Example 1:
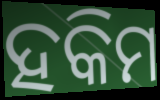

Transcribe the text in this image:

ହକିମ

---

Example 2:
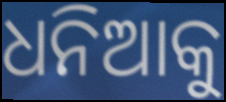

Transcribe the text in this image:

ଧନିଆକୁ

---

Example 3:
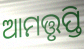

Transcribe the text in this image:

ଆମତ୍ତୃପ୍ତି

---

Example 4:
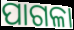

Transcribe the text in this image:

ପାଗଳା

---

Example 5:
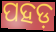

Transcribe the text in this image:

ପହଡ଼